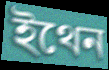
ইথেন